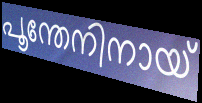
പൂന്തേനിനായ്